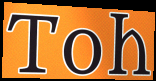
Toh